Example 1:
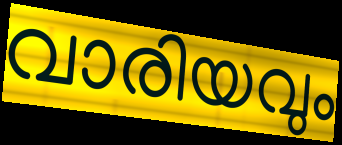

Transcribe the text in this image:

വാരിയവും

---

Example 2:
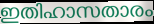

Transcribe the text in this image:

ഇതിഹാസതാരം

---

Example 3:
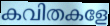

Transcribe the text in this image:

കവിതകളേ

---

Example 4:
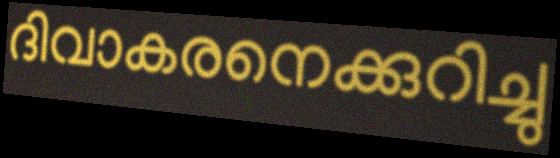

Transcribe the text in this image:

ദിവാകരനെക്കുറിച്ചു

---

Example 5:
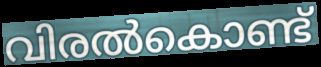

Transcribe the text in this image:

വിരൽകൊണ്ട്